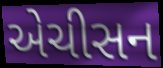
એચીસન